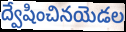
ద్వేషించినయెడల